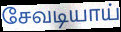
சேவடியாய்